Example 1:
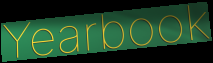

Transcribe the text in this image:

Yearbook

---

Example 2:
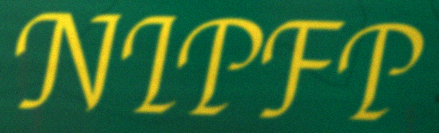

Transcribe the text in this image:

NIPFP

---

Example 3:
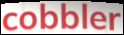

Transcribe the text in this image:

cobbler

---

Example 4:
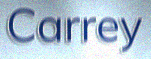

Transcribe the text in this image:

Carrey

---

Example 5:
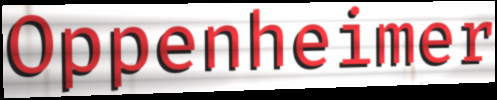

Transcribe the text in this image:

Oppenheimer